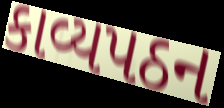
કાવ્યપઠન